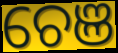
ଚେଞ